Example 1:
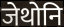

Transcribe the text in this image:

जेथोनि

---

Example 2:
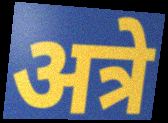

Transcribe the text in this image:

अत्रे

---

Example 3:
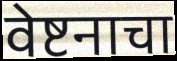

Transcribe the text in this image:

वेष्टनाचा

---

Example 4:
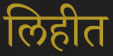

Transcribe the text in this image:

लिहीत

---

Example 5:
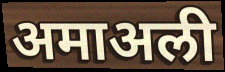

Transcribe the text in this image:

अमाअली